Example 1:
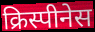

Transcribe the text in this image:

क्रिस्पीनेस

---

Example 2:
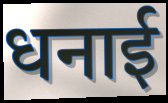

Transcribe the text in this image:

धनाई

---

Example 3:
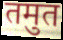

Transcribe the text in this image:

तमुत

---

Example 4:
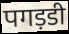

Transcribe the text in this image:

पगड़डी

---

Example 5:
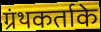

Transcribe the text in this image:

ग्रंथकर्ताके